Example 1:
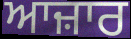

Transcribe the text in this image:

ਆਜ਼ਾਰ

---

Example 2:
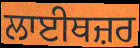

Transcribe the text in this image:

ਲਾਈਥਜ਼ਰ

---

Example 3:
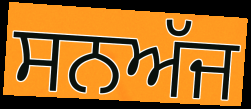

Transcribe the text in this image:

ਸਨਅੱਜ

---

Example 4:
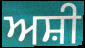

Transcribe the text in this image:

ਅਸ਼ੀ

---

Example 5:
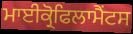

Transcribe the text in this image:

ਮਾਈਕ੍ਰੋਫਿਲਾਮੈਂਟਸ